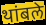
थांबले